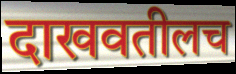
दाखवतीलच